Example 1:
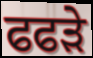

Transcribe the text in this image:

ਫਫੜੇ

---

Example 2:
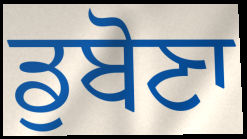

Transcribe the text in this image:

ਡੁਬੋਣਾ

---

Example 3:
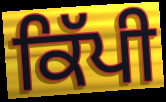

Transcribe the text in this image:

ਕਿੱਪੀ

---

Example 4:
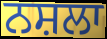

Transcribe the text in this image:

ਨਸ਼ਲਾ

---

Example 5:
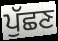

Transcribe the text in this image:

ਪੁੱਛਣ